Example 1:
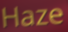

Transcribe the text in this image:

Haze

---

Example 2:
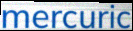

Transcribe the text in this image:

mercuric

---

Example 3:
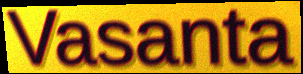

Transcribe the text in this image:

Vasanta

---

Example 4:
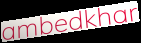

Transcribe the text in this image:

ambedkhar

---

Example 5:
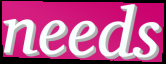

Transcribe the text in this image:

needs